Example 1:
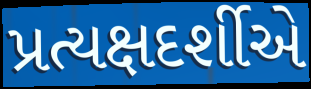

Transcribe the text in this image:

પ્રત્યક્ષદર્શીએ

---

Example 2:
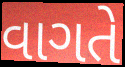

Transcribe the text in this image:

વાગતે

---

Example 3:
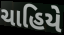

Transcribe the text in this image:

ચાહિયે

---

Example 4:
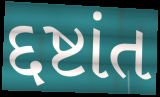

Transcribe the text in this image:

દ્દષ્ટાંત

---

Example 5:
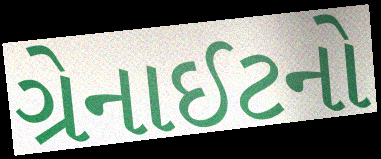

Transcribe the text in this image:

ગ્રેનાઈટનો